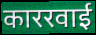
काररवाई